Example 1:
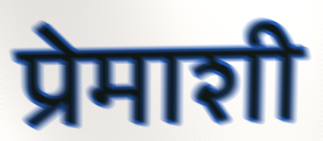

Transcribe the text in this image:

प्रेमाशी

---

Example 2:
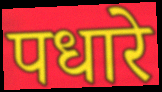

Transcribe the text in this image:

पधारे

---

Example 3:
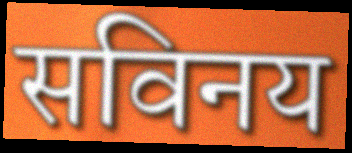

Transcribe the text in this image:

सविनय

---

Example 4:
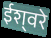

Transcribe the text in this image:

ईश्वरे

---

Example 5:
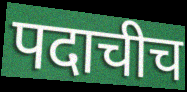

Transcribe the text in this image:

पदाचीच